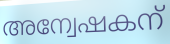
അന്വേഷകന്